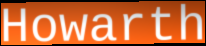
Howarth